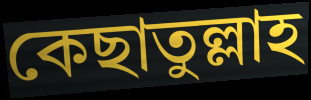
কেছাতুল্লাহ